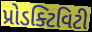
પ્રોડક્ટિવિટી